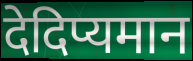
देदिप्यमान